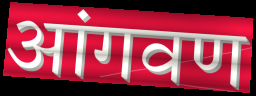
आंगवण